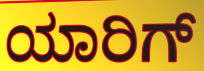
ಯಾರಿಗ್